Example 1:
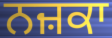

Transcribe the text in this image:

ਨਜ਼ਕਾ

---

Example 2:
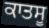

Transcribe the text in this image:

ਕਾਤਸੂ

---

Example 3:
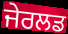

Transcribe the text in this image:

ਜੇਰਲਡ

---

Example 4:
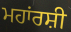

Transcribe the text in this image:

ਮਹਾਂਰਸ਼ੀ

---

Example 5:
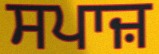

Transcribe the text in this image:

ਸਪਾਜ਼